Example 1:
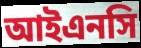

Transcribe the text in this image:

আইএনসি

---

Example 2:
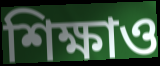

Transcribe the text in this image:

শিক্ষাও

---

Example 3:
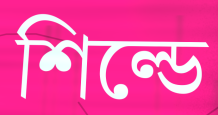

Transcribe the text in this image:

শিল্ডে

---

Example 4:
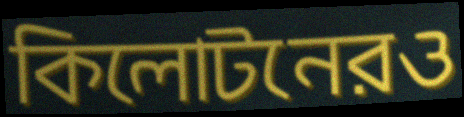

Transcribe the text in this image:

কিলোটনেরও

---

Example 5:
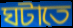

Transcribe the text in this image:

ঘটাতে